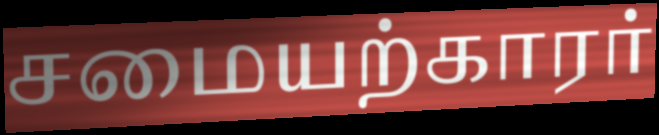
சமையற்காரர்